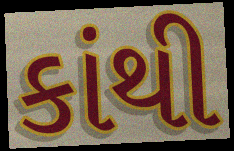
કાંથી